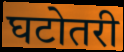
घटोतरी